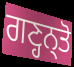
ਗਣ੍ਹਨ੍ਤੋ